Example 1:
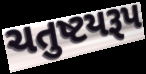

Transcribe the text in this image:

ચતુષ્ટયરૂપ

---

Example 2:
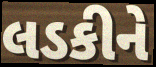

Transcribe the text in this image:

લડકીને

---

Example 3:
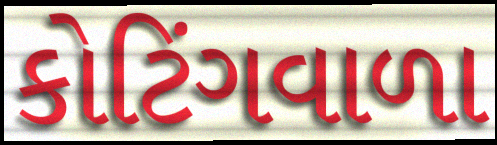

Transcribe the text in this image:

કોટિંગવાળા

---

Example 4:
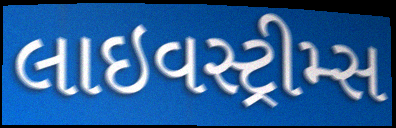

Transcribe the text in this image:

લાઇવસ્ટ્રીમ્સ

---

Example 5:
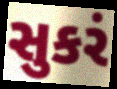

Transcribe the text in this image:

સુકરં